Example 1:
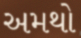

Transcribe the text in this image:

અમથો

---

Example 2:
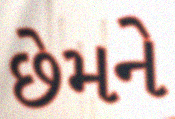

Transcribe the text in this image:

છેમને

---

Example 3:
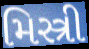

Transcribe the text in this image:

મિસ્ત્રી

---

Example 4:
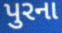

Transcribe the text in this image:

પુરના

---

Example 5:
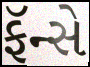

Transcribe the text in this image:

ફૅન્સે